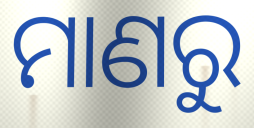
ମାଣରୁ